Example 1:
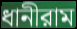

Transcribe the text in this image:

ধানীরাম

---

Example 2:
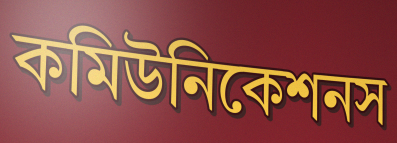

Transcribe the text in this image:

কমিউনিকেশনস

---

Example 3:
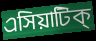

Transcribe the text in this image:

এসিয়াটিক্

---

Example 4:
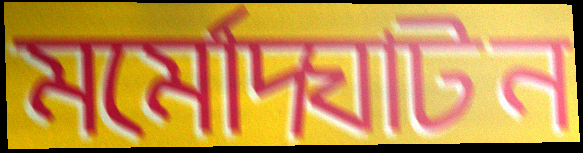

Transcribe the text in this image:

মর্মোদ্ঘাটন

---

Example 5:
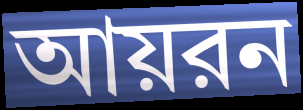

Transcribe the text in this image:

আয়রন